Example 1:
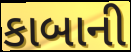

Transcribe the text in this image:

કાબાની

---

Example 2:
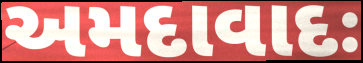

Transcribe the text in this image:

અમદાવાદઃ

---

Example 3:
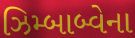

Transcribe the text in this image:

ઝિમ્બાબ્વેના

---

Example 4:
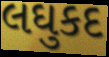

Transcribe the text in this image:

લઘુકદ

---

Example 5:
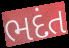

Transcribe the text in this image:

ભદંત